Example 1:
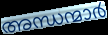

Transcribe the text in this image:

അന്ധന്മാർ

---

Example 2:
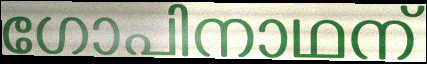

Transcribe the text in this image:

ഗോപിനാഥന്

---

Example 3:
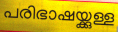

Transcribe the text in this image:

പരിഭാഷയ്ക്കുള്ള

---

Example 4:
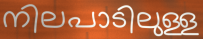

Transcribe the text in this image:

നിലപാടിലുള്ള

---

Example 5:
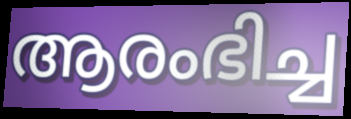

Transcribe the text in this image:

ആരംഭിച്ച